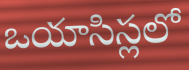
ఒయాసిస్లలో